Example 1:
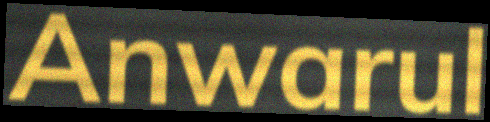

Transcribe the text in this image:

Anwarul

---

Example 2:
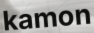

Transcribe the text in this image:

kamon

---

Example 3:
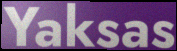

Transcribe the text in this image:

Yaksas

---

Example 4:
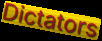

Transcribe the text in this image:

Dictators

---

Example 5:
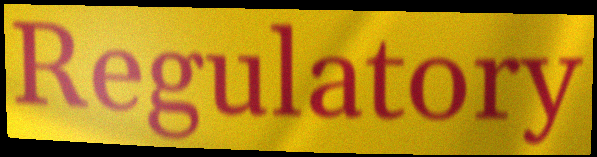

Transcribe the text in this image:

Regulatory